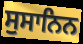
ਸੁਸਾਨਿਨ